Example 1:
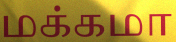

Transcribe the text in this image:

மக்கமா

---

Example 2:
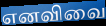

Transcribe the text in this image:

எனவிவை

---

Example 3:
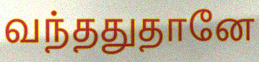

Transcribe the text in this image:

வந்ததுதானே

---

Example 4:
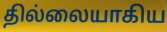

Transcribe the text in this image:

தில்லையாகிய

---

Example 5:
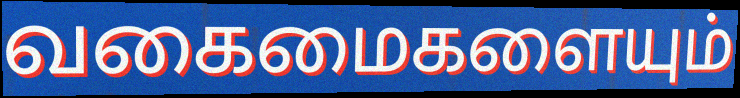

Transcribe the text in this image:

வகைமைகளையும்